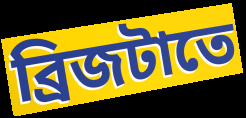
ব্রিজটাতে